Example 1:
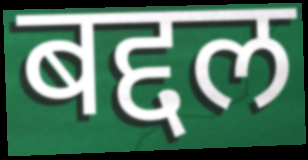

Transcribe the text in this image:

बद्दल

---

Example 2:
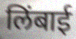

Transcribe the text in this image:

लिंबाई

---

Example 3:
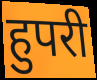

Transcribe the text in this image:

हुपरी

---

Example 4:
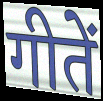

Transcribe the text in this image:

गीतें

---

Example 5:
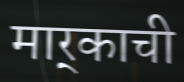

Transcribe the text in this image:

मार्काची